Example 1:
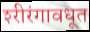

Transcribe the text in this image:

श्रीरंगावधूत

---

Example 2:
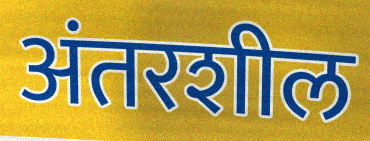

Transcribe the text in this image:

अंतरशील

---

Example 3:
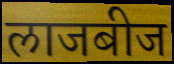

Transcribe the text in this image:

लाजबीज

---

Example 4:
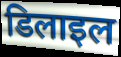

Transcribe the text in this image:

डिलाइल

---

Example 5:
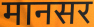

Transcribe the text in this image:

मानसर